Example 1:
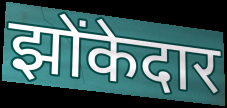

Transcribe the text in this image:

झोंकेदार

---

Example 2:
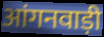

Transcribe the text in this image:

आंगनवाड़ी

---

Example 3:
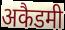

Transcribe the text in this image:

अकैडमी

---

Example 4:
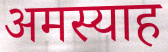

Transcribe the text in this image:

अमस्याह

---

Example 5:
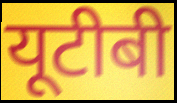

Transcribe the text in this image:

यूटीबी